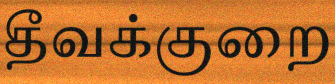
தீவக்குறை